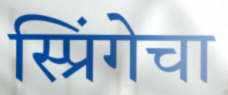
स्प्रिंगेचा